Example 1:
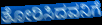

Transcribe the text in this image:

ತೋರಿಸಿದವನಿಗೆ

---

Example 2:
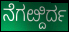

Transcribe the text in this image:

ನೆಗೞ್ದಿರ್ದ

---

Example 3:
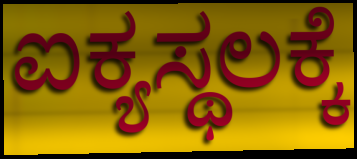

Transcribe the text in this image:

ಐಕ್ಯಸ್ಥಲಕ್ಕೆ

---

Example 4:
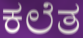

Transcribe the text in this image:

ಕಲೆತ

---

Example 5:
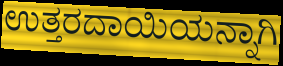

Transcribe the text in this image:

ಉತ್ತರದಾಯಿಯನ್ನಾಗಿ